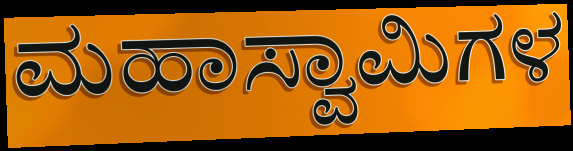
ಮಹಾಸ್ವಾಮಿಗಳ